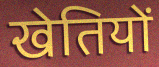
खेतियों